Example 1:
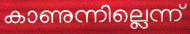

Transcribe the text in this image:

കാണുന്നില്ലെന്ന്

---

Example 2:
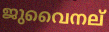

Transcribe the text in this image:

ജുവൈനല്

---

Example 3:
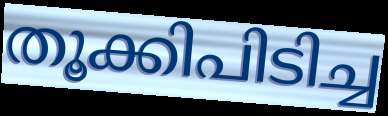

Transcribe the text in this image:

തൂക്കിപിടിച്ച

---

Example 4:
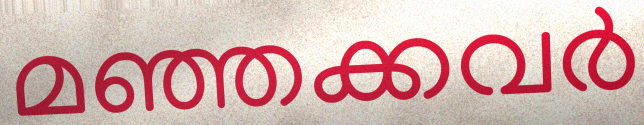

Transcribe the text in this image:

മഞ്ഞക്കവർ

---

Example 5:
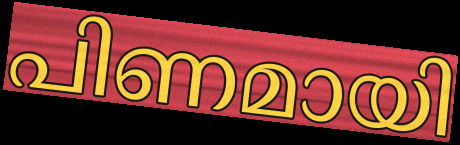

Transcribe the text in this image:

പിണമായി